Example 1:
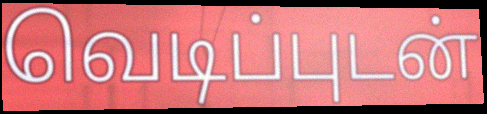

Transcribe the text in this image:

வெடிப்புடன்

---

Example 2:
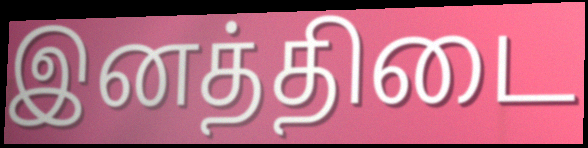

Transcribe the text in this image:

இனத்திடை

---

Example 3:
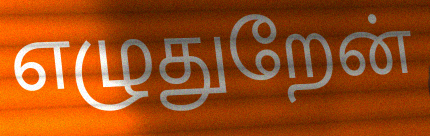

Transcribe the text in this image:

எழுதுறேன்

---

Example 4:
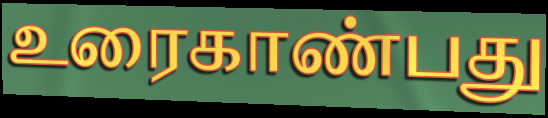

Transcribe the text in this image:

உரைகாண்பது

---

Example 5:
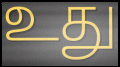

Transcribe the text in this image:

உது